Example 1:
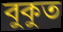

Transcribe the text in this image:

বুকুত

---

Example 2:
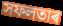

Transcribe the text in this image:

সফলতাৰ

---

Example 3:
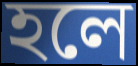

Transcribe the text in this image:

হলে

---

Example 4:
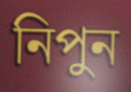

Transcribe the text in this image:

নিপুন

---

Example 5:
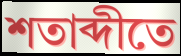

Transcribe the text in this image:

শতাব্দীতে